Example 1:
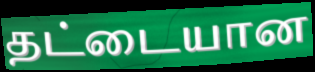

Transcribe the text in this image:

தட்டையான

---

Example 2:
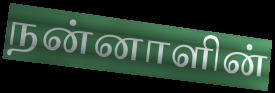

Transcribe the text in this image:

நன்னாளின்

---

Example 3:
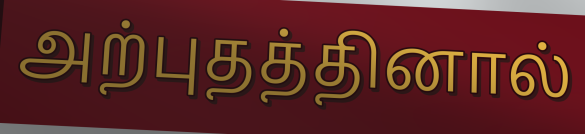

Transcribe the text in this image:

அற்புதத்தினால்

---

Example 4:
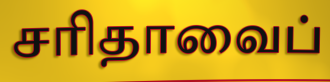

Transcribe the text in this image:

சரிதாவைப்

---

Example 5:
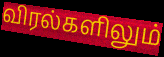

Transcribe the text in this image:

விரல்களிலும்